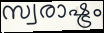
സ്വരാഷ്ട്രം